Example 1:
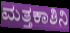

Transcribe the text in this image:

ಮತ್ತಕಾಶಿನಿ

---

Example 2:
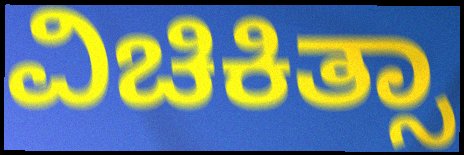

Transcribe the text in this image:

ವಿಚಿಕಿತ್ಸಾ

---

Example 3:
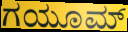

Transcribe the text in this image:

ಗಯೂಮ್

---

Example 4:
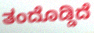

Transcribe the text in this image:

ತಂದೊಡ್ಡಿದೆ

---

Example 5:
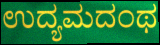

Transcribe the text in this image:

ಉದ್ಯಮದಂಥ